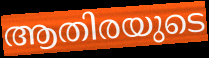
ആതിരയുടെ